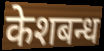
केशबन्ध